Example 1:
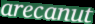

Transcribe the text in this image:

arecanut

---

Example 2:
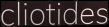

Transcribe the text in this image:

cliotides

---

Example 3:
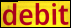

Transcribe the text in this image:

debit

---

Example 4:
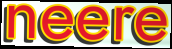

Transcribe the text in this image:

neere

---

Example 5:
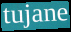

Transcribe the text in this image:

tujane